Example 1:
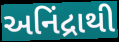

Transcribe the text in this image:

અનિંદ્રાથી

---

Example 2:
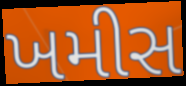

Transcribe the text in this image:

ખમીસ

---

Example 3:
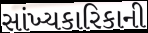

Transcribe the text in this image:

સાંખ્યકારિકાની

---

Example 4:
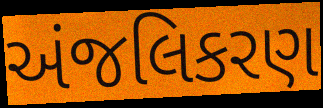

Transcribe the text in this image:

અંજલિકરણ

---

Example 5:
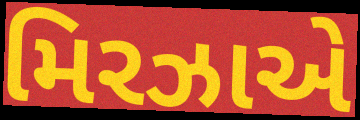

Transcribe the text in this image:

મિરઝાએ